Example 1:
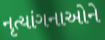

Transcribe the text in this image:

નૃત્યાંગનાઓને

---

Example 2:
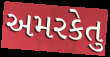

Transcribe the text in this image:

અમરકેતુ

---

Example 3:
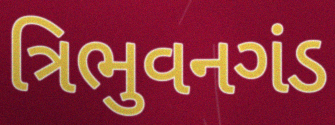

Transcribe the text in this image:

ત્રિભુવનગંડ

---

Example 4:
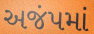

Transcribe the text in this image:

અજંપમાં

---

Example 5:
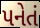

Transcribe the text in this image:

પનેતં